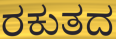
ರಕುತದ